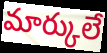
మార్కులే